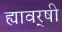
ह्यावर्षी